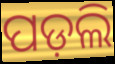
ପଡ଼ଲି